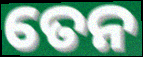
ତେନ